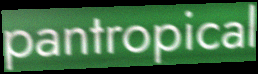
pantropical